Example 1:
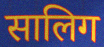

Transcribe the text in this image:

सालिग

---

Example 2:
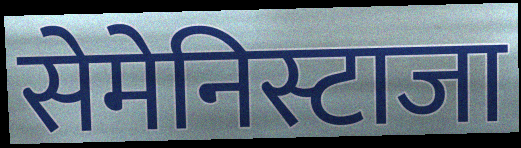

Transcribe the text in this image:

सेमेनिस्टाजा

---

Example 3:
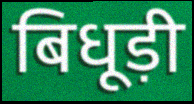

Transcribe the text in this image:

बिधूड़ी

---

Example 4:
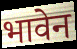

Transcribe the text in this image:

भावेन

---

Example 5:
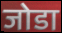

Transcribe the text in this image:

जोडा